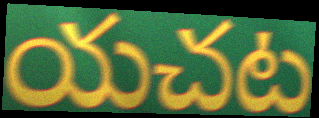
యచట